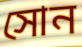
সোন